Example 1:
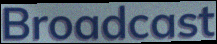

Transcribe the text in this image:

Broadcast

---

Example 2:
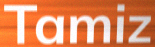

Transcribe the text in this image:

Tamiz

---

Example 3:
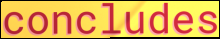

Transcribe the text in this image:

concludes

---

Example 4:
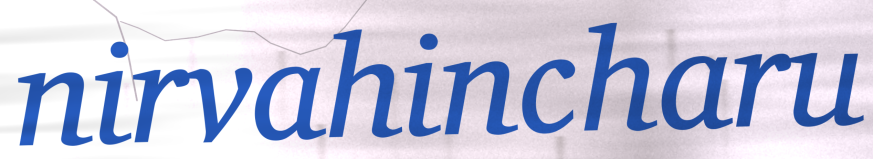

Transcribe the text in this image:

nirvahincharu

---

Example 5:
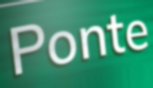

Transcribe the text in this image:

Ponte